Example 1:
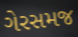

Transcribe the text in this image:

ગેરસમજ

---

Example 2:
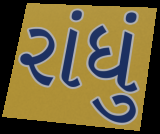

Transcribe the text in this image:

રાંધું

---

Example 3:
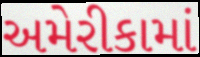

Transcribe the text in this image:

અમેરીકામાં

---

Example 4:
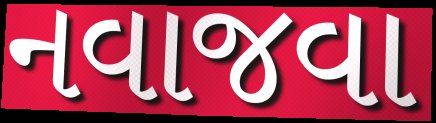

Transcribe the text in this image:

નવાજવા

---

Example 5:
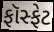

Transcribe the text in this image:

ફૉસ્ફેટ